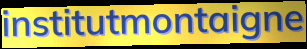
institutmontaigne